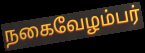
நகைவேழம்பர்